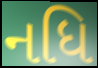
નધિ